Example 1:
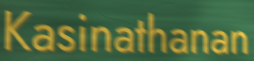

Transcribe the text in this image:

Kasinathanan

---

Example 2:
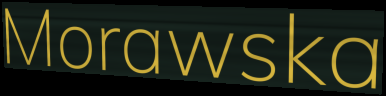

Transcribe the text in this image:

Morawska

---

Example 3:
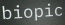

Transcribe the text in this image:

biopic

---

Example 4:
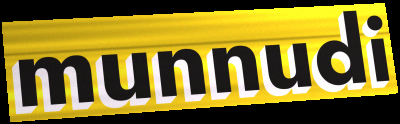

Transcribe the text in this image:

munnudi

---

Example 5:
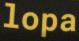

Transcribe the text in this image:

lopa